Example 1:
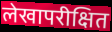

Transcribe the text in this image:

लेखापरीक्षित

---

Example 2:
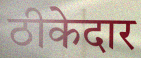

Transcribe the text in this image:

ठीकेदार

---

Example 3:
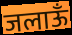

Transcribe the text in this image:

जलाऊँ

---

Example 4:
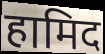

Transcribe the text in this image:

हामिद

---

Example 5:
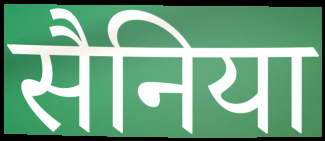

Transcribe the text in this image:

सैनिया